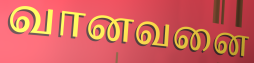
வானவனை